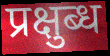
प्रक्षुब्ध